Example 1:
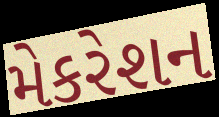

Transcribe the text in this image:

મેકરેશન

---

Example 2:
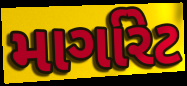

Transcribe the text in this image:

માર્ગારેટ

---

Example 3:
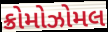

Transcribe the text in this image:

ક્રોમોઝોમલ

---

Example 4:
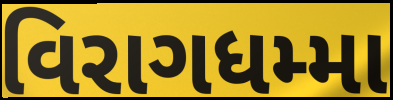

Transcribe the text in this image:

વિરાગધમ્મા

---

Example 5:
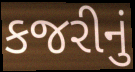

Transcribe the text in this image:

કજરીનું